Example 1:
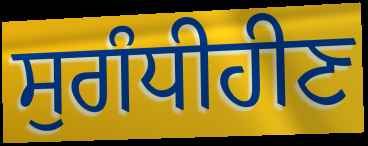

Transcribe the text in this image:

ਸੁਗੰਧੀਹੀਣ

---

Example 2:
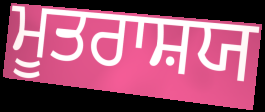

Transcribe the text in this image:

ਮੂਤਰਾਸ਼ਯ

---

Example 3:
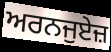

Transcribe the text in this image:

ਅਰਨਜੁਏਜ਼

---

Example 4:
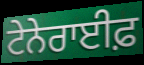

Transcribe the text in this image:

ਟੇਨੇਰਾਈਫ਼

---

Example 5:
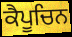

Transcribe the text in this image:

ਕੈਪੂਚਿਨ